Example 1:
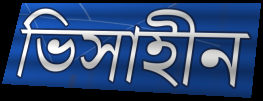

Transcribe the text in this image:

ভিসাহীন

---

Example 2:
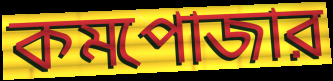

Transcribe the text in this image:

কমপোজার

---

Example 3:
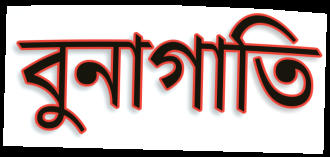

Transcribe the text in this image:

বুনাগাতি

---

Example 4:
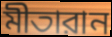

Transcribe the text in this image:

মীতারান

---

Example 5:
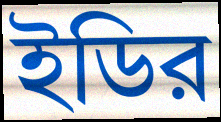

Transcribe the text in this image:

ইডির